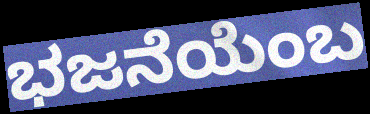
ಭಜನೆಯೆಂಬ